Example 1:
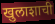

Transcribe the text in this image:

खुलाशाची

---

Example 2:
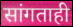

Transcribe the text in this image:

सांगताही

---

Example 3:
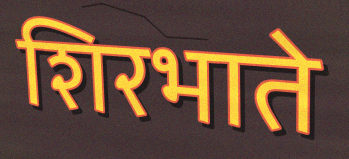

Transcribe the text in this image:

शिरभाते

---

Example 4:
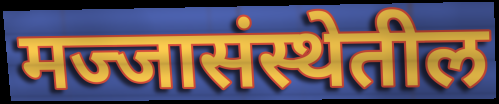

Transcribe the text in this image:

मज्जासंस्थेतील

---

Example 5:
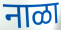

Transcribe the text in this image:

नाळा